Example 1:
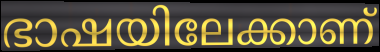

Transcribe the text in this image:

ഭാഷയിലേക്കാണ്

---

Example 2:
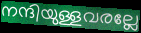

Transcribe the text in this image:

നന്ദിയുള്ളവരല്ലേ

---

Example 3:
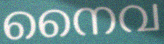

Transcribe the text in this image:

നൈവ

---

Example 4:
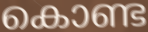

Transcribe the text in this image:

കൊണ്ട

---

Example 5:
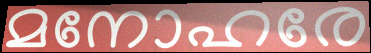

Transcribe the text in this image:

മനോഹരേ